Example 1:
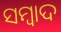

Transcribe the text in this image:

ସମ୍ବାଦ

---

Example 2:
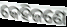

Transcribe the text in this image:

କେହିଜଣେ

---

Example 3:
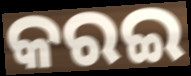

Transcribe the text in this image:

କରଇ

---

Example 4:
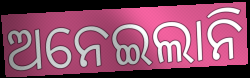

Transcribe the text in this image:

ଅନେଇଲାନି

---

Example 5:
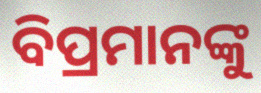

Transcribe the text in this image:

ବିପ୍ରମାନଙ୍କୁ